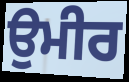
ਉਮੀਰ